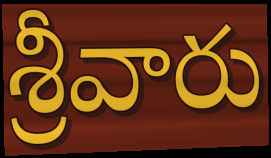
శ్రీవారు